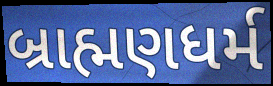
બ્રાહ્મણધર્મ